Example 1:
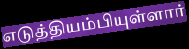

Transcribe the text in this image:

எடுத்தியம்பியுள்ளார்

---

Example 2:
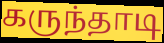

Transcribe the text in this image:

கருந்தாடி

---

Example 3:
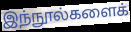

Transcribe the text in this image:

இந்நூல்களைக்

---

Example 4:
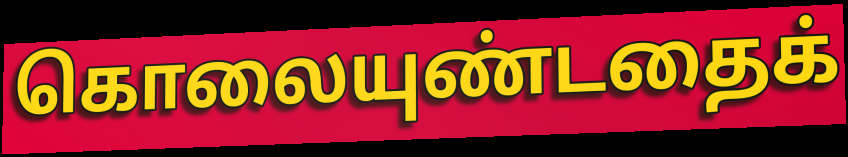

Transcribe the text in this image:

கொலையுண்டதைக்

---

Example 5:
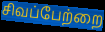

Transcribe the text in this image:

சிவப்பேற்றை